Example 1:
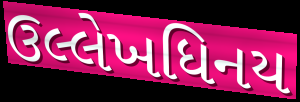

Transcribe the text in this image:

ઉલ્લેખધિનય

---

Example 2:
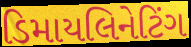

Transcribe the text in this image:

ડિમાયલિનેટિંગ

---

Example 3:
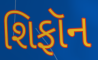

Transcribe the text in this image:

શિફૉન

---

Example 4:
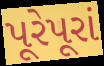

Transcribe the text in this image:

પૂરેપૂરાં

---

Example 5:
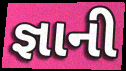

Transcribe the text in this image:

જ્ઞાની